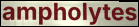
ampholytes